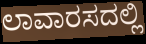
ಲಾವಾರಸದಲ್ಲಿ